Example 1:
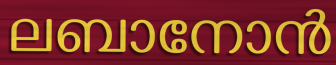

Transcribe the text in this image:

ലബാനോൻ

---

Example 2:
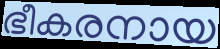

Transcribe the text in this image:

ഭീകരനായ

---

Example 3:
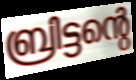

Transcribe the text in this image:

ബ്രിട്ടന്റെ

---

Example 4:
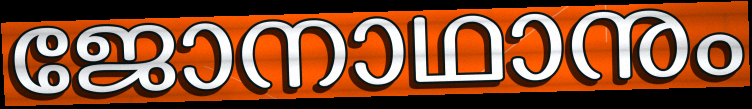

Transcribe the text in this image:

ജോനാഥാനും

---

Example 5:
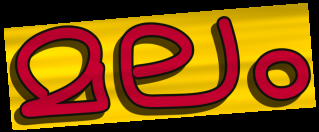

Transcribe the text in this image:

മലം